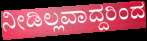
ನೀಡಿಲ್ಲವಾದ್ದರಿಂದ